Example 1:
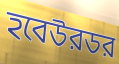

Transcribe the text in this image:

হবেউরডর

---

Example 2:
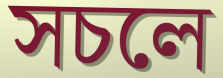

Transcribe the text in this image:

সচলে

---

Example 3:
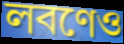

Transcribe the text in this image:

লবণেও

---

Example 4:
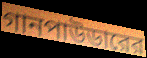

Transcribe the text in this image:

গানপাউডারের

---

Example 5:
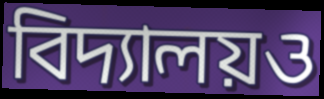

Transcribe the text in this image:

বিদ্যালয়ও